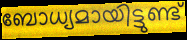
ബോധ്യമായിട്ടുണ്ട്